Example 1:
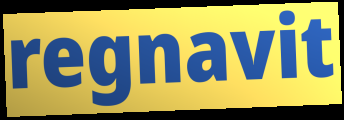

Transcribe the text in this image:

regnavit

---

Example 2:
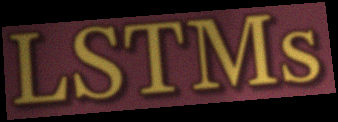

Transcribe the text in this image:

LSTMs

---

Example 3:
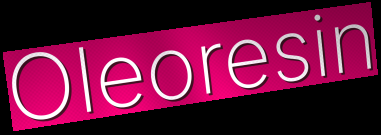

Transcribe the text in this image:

Oleoresin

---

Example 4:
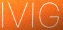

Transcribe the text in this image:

IVIG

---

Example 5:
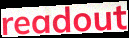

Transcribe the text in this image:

readout